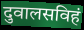
दुवालसविहं